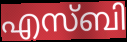
എസ്ബി